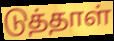
டுத்தாள்